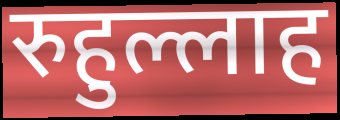
रुहुल्लाह